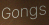
Gongs